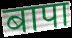
बापा